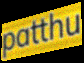
patthu